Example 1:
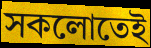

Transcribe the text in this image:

সকলোতেই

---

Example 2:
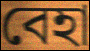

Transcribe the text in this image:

বেহা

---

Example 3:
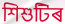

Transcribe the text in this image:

শিশুটিৰ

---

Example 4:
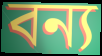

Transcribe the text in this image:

বন্য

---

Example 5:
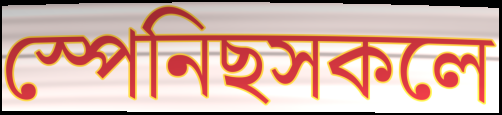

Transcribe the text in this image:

স্পেনিছসকলে